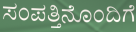
ಸಂಪತ್ತಿನೊಂದಿಗೆ